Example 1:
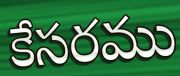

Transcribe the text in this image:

కేసరము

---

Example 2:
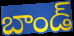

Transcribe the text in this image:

బాండ్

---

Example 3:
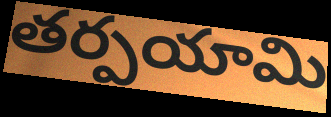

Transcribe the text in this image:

తర్పయామి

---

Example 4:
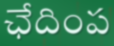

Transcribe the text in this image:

ఛేదింప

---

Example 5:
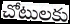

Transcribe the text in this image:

చోటులకు